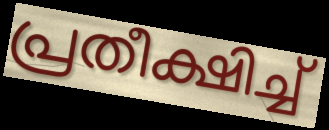
പ്രതീക്ഷിച്ച്